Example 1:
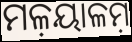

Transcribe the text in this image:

ମଳ଼ୟାଳମ଼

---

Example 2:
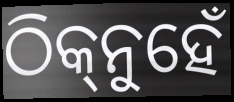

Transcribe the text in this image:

ଠିକ୍‌ନୁହେଁ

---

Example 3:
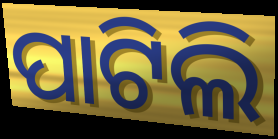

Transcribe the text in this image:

ପାଟିଲି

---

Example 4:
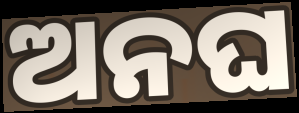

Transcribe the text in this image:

ଅନଘ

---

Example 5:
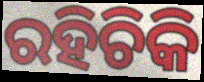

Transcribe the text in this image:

ରହିଚିକି